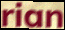
rian